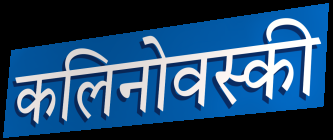
कलिनोवस्की